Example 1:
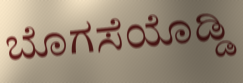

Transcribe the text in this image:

ಬೊಗಸೆಯೊಡ್ಡಿ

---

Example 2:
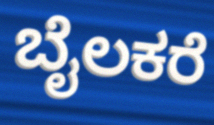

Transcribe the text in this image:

ಬೈಲಕರೆ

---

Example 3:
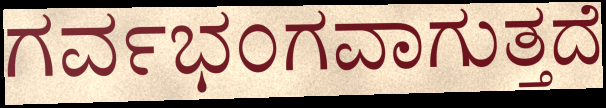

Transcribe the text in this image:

ಗರ್ವಭಂಗವಾಗುತ್ತದೆ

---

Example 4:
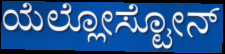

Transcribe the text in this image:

ಯೆಲ್ಲೋಸ್ಟೋನ್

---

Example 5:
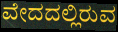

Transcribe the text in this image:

ವೇದದಲ್ಲಿರುವ